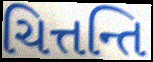
ચિત્તન્તિ